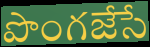
పొంగజేసే